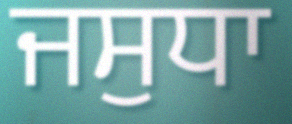
ਜਸੁਧਾ